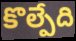
కొల్పేది